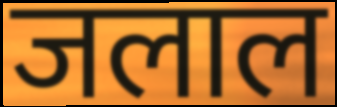
जलाल